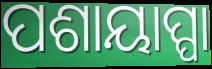
ପଶାୟାପ୍ପା